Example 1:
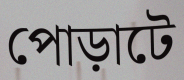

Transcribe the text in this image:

পোড়াটে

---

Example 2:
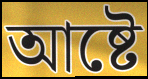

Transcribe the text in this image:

আষ্টে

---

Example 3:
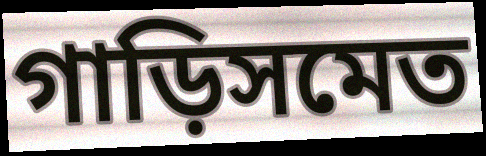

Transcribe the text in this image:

গাড়িসমেত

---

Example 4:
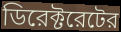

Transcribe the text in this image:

ডিরেক্টরেটের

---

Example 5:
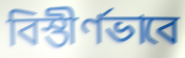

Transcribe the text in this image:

বিস্তীর্ণভাবে